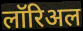
लॉरिअल